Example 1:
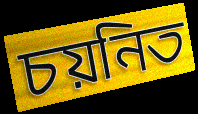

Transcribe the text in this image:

চয়নিত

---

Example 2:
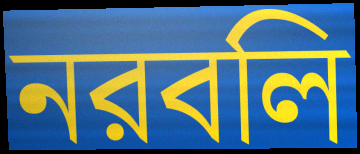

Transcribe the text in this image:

নরবলি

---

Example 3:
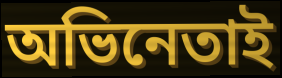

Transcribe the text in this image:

অভিনেতাই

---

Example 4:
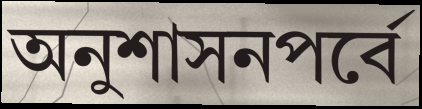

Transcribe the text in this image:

অনুশাসনপর্বে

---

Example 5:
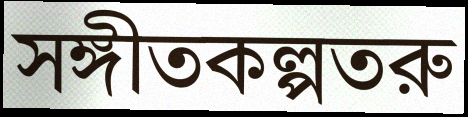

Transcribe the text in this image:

সঙ্গীতকল্পতরু